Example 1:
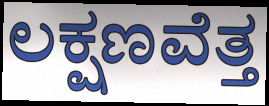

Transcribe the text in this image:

ಲಕ್ಷಣವೆತ್ತ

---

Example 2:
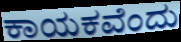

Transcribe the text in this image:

ಕಾಯಕವೆಂದು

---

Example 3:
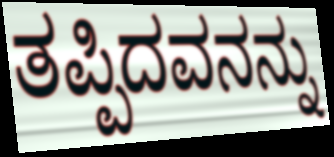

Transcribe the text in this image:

ತಪ್ಪಿದವನನ್ನು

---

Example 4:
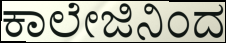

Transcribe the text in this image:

ಕಾಲೇಜಿನಿಂದ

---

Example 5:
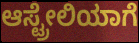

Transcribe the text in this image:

ಆಸ್ಟ್ರೇಲಿಯಾಗೆ